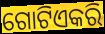
ଗୋଟିଏକରି